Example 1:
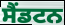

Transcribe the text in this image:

ਸੈਂਡਟਨ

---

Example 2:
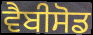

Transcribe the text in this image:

ਵੈਬੀਸੋਡ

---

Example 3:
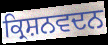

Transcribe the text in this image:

ਕ੍ਰਿਸ਼ਨਵਦਨ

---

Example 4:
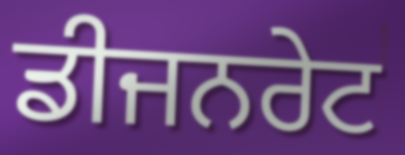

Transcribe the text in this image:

ਡੀਜਨਰੇਟ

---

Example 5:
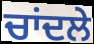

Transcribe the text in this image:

ਚਾਂਦਲੇ